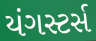
યંગસ્ટર્સ